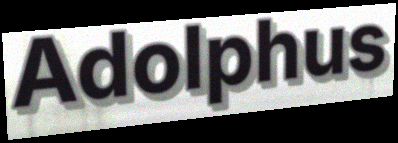
Adolphus